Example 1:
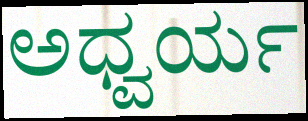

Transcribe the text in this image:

ಅಧ್ವರ್ಯ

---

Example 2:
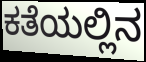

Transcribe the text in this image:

ಕತೆಯಲ್ಲಿನ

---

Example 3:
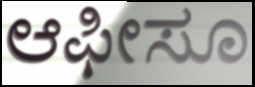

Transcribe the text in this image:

ಆಫೀಸೂ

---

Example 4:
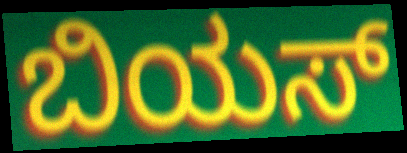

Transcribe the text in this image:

ಬಿಯಸ್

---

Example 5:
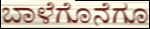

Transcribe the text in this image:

ಬಾಳೆಗೊನೆಗೂ